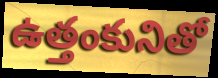
ఉత్తంకునితో